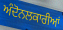
ਅੰਦੋਨਲਕਾਰੀਆਂ